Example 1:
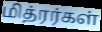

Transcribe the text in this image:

மித்ரர்கள்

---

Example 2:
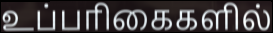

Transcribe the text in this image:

உப்பரிகைகளில்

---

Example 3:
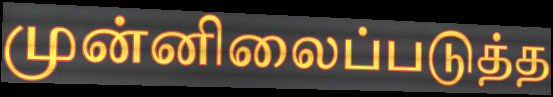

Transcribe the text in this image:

முன்னிலைப்படுத்த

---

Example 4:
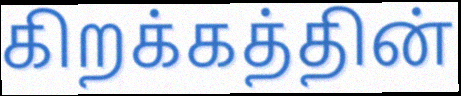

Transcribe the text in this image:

கிறக்கத்தின்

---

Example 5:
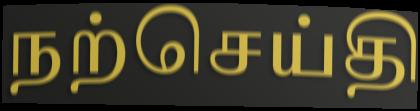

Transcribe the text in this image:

நற்செய்தி